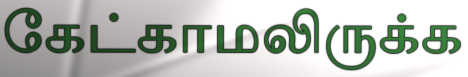
கேட்காமலிருக்க